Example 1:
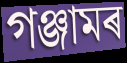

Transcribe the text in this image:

গঞ্জামৰ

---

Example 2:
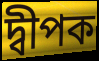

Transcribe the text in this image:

দ্বীপক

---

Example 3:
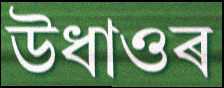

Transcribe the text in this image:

উধাওৰ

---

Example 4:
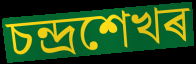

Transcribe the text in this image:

চন্দ্ৰশেখৰ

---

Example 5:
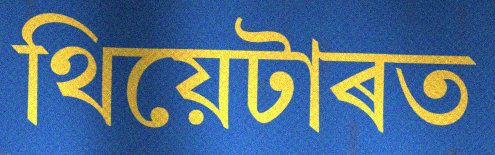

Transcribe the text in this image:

থিয়েটাৰত